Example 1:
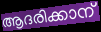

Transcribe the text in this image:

ആദരിക്കാന്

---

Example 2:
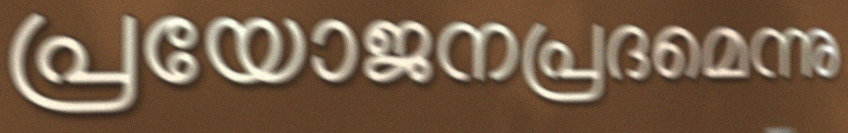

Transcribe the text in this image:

പ്രയോജനപ്രദമെന്നു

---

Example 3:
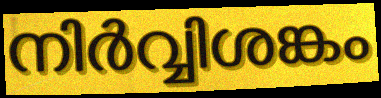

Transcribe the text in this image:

നിർവ്വിശങ്കം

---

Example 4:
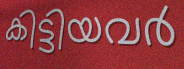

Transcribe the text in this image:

കിട്ടിയവർ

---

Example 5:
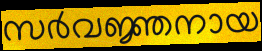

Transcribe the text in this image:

സർവജ്ഞനായ